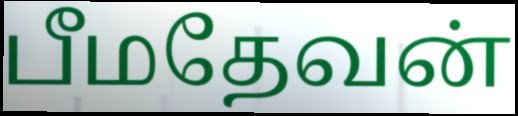
பீமதேவன்